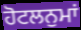
ਹੋਟਲਨੁਮਾਂ